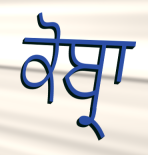
ਕੋਬ੍ਰਾ